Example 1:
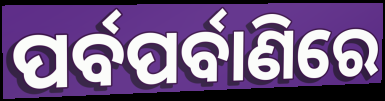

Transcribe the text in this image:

ପର୍ବପର୍ବାଣିରେ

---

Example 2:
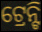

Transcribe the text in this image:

ଟ୍ରେନ୍ଟି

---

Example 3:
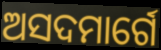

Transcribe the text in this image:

ଅସଦମାର୍ଗେ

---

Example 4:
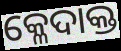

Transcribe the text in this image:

କ୍ଳେଦାକ୍ତ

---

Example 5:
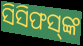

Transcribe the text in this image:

ସିସିଫସ୍‌ଙ୍କ